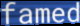
famed